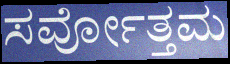
ಸರ್ವೋತ್ತಮ